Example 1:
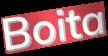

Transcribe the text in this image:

Boita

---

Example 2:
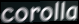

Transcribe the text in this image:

corolla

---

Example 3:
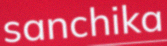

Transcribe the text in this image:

sanchika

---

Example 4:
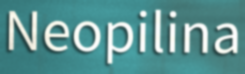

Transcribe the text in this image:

Neopilina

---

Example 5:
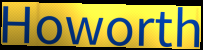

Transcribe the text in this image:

Howorth